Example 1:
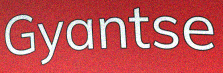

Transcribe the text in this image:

Gyantse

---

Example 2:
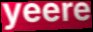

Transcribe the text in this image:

yeere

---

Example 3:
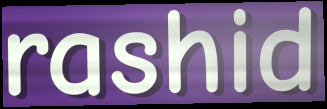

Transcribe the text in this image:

rashid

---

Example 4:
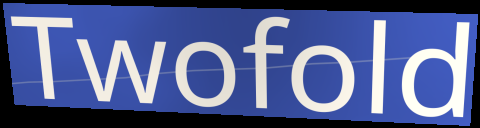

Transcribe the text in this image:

Twofold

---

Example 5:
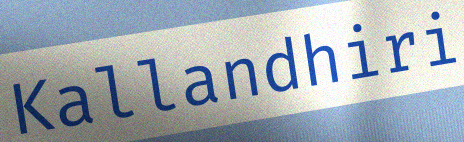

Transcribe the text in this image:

Kallandhiri